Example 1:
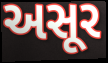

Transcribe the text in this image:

અસૂર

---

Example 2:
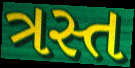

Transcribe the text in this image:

ત્રસ્ત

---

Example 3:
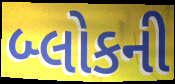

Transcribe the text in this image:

બ્લોકની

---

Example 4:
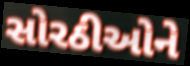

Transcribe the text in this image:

સોરઠીઓને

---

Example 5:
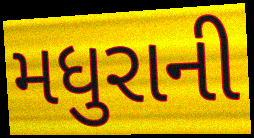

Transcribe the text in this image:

મધુરાની